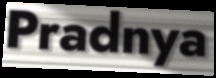
Pradnya